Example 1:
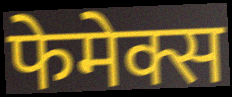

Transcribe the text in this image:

फेमेक्स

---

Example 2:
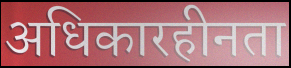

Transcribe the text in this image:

अधिकारहीनता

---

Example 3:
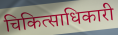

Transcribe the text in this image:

चिकित्साधिकारी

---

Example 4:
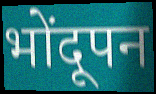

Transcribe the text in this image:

भोंदूपन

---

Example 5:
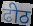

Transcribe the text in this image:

ढीठ